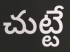
చుట్టే